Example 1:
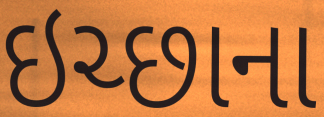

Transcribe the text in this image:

ઇચ્છાના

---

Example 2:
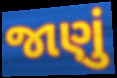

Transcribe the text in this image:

જાણું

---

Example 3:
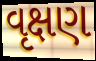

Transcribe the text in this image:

વૃક્ષણ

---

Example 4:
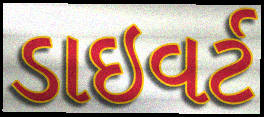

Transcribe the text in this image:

ડાઇવર્ટ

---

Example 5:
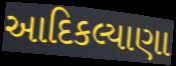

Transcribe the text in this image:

આદિકલ્યાણા